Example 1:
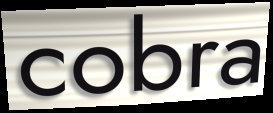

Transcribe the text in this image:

cobra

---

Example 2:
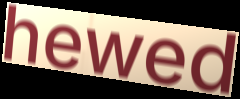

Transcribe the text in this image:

hewed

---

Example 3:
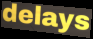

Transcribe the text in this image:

delays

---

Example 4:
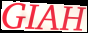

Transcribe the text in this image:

GIAH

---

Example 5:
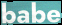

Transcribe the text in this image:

babe